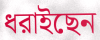
ধরাইছেন